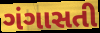
ગંગાસતી